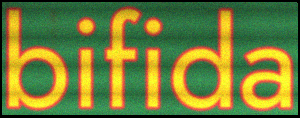
bifida